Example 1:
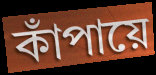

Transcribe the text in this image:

কাঁপায়ে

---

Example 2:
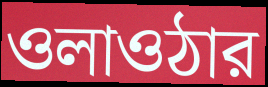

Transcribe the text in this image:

ওলাওঠার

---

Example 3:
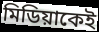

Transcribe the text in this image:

মিডিয়াকেই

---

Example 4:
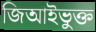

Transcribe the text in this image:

জিআইভুক্ত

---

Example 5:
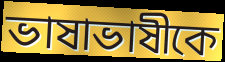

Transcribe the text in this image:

ভাষাভাষীকে